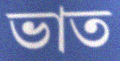
ভাত